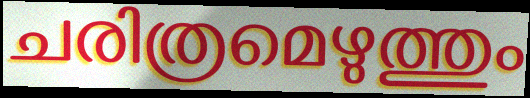
ചരിത്രമെഴുത്തും